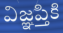
విజ్ఞప్తికి